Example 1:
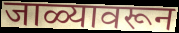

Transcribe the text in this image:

जाळ्यावरून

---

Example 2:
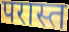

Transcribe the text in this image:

परास्त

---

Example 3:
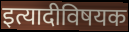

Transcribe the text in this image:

इत्यादीविषयक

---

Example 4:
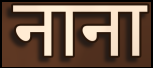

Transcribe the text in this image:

नाना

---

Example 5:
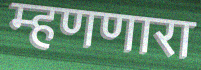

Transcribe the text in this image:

म्हणणारा